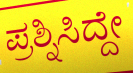
ಪ್ರಶ್ನಿಸಿದ್ದೇ